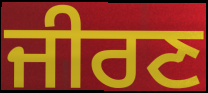
ਜੀਰਣ